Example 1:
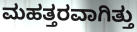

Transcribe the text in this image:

ಮಹತ್ತರವಾಗಿತ್ತು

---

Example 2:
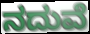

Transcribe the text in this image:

ನದುವೆ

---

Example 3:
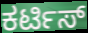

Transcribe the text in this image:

ಕರ್ಟಿಸ್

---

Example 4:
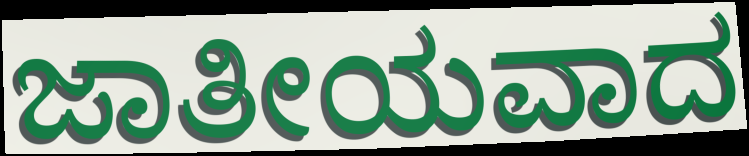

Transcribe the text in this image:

ಜಾತೀಯವಾದ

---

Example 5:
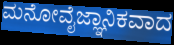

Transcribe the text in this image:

ಮನೋವೈಜ್ಞಾನಿಕವಾದ